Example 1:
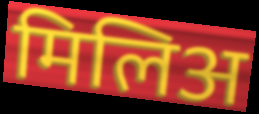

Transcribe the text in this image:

मिलिअ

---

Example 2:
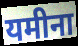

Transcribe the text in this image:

यमीना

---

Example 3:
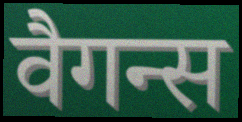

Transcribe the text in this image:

वैगन्स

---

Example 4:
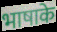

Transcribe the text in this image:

भाषाके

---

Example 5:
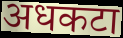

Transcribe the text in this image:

अधकटा